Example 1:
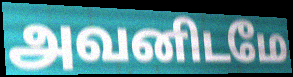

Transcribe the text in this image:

அவனிடமே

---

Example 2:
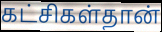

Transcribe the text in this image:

கட்சிகள்தான்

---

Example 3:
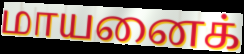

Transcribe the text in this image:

மாயனைக்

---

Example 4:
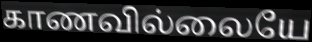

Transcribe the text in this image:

காணவில்லையே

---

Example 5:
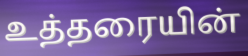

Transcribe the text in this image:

உத்தரையின்